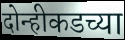
दोन्हीकडच्या